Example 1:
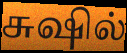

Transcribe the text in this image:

சுஷில்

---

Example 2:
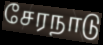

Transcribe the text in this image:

சேரநாடு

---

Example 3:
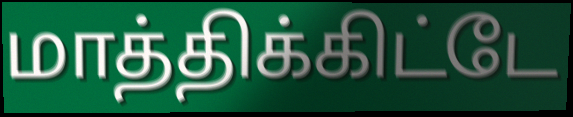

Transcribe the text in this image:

மாத்திக்கிட்டே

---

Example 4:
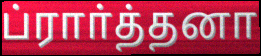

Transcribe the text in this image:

ப்ரார்த்தனா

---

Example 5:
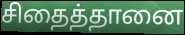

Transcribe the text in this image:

சிதைத்தானை